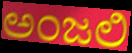
ಅಂಜಲಿ